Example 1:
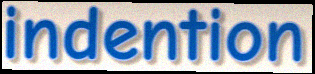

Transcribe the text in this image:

indention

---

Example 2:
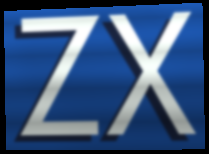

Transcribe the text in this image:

ZX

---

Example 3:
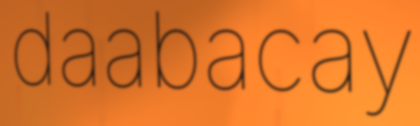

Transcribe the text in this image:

daabacay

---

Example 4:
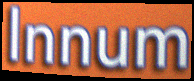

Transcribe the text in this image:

Innum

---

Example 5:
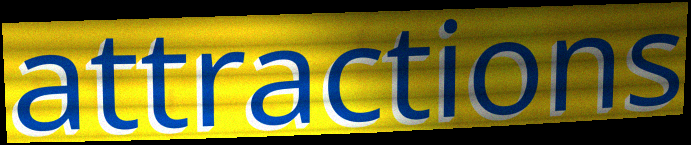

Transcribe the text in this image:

attractions